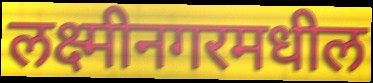
लक्ष्मीनगरमधील